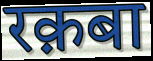
रक़बा